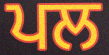
ਪਲ